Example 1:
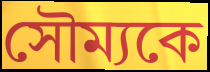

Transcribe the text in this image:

সৌম্যকে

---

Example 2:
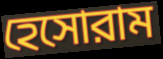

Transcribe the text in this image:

হেসোরাম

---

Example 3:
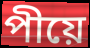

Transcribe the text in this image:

পীয়ে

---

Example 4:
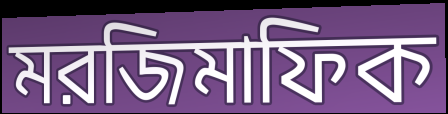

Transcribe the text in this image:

মরজিমাফিক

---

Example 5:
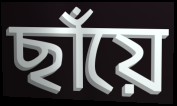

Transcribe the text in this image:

ছাঁয়ে